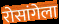
रोसांगेला